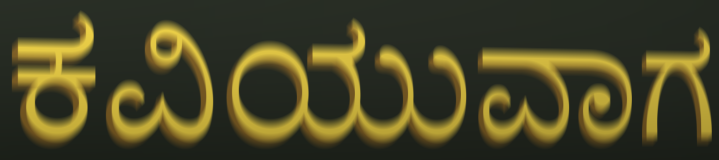
ಕವಿಯುವಾಗ